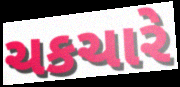
ચકચારે